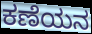
ಕಣೆಯನ